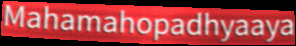
Mahamahopadhyaaya